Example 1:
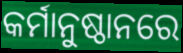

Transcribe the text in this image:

କର୍ମାନୁଷ୍ଠାନରେ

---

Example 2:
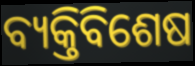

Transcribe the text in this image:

ବ୍ୟକ୍ତିବିଶେଷ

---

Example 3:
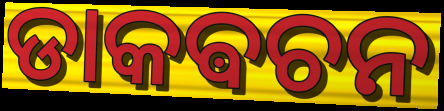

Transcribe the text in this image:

ଡାକଵଚନ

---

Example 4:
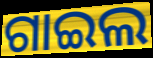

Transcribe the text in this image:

ଗାଇଲ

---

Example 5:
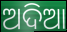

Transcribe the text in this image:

ଅଦିଆ